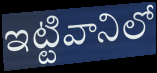
ఇట్టివానిలో